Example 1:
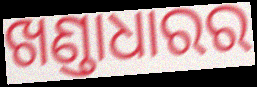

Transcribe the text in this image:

ଖଣ୍ଡାଧାରର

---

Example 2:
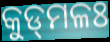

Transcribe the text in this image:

କୁଡ୍‌ମଳଃ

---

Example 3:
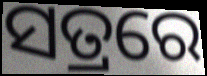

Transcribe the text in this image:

ସତ୍ରରେ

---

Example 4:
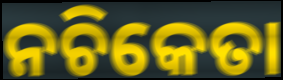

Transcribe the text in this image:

ନଚିକେତା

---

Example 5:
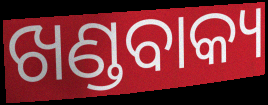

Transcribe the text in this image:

ଖଣ୍ଡବାକ୍ୟ